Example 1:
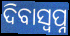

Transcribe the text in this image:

ଦିବାସ୍ଵପ୍ନ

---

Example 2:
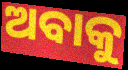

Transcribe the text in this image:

ଅବାକୁ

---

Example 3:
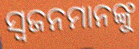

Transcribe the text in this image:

ସ୍ବଜନମାନଙ୍କୁ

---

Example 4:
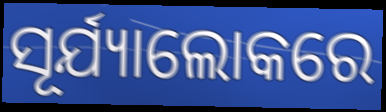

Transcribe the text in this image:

ସୂର୍ଯ୍ୟାଲୋକରେ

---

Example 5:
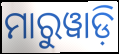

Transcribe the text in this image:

ମାରୁୱାଡ଼ି